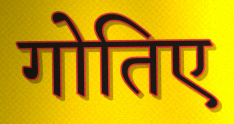
गोतिए